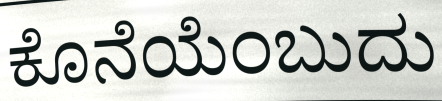
ಕೊನೆಯೆಂಬುದು